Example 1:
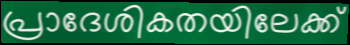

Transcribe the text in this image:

പ്രാദേശികതയിലേക്ക്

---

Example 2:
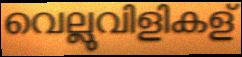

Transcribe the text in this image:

വെല്ലുവിളികള്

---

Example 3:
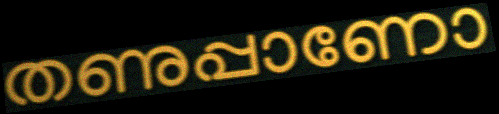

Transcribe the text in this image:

തണുപ്പാണോ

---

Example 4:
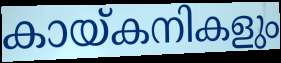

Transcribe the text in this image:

കായ്കനികളും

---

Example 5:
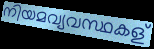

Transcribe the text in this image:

നിയമവ്യവസ്ഥകള്